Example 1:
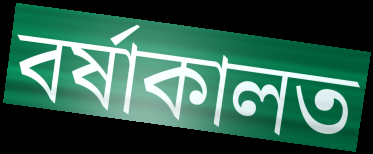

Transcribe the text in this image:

বৰ্ষাকালত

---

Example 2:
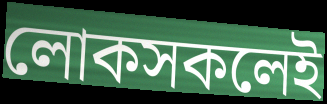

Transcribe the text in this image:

লোকসকলেই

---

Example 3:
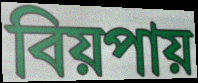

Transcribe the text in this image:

বিয়পায়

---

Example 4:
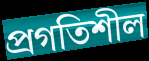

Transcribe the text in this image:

প্ৰগতিশীল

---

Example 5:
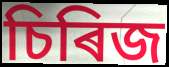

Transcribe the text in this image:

চিৰিজ